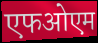
एफओएम